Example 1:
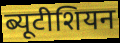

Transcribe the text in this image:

ब्यूटीशियन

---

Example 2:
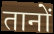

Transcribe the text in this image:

तानों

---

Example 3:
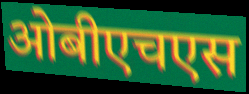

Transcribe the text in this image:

ओबीएचएस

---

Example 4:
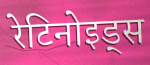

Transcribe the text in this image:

रेटिनोइड्स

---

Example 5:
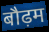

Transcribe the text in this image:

बौढ़म